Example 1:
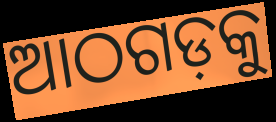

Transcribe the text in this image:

ଆଠଗଡ଼କୁ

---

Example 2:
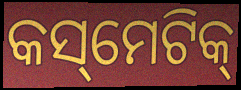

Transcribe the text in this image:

କସ୍‌ମେଟିକ୍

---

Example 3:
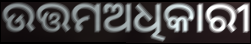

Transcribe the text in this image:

ଉତ୍ତମଅଧିକାରୀ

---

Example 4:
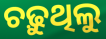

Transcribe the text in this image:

ଚଢ଼ୁଥିଲୁ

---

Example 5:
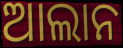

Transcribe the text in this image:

ଆଲାନ